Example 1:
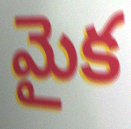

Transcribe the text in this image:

మైక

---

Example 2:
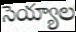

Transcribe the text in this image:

సెయ్యాల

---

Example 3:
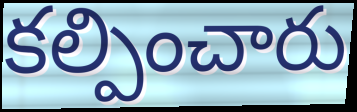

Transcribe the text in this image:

కల్పించారు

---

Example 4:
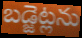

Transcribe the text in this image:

బడ్జెట్లను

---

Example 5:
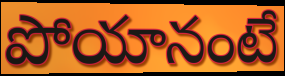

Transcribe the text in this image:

పోయానంటే